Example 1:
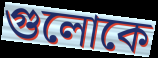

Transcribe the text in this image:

গুলোকে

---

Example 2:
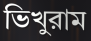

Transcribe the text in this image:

ভিখুরাম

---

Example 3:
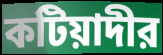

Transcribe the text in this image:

কটিয়াদীর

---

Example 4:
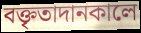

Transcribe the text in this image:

বক্তৃতাদানকালে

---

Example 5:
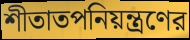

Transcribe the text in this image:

শীতাতপনিয়ন্ত্রণের